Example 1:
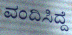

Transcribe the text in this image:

ವಂದಿಸಿದ್ದೆ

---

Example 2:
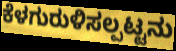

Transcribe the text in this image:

ಕೆಳಗುರುಳಿಸಲ್ಪಟ್ಟನು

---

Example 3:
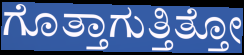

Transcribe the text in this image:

ಗೊತ್ತಾಗುತ್ತಿತ್ತೋ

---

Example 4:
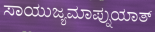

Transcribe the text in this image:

ಸಾಯುಜ್ಯಮಾಪ್ನುಯಾತ್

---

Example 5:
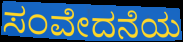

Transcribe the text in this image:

ಸಂವೇದನೆಯ